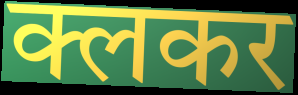
क्लकर